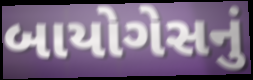
બાયોગેસનું